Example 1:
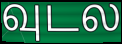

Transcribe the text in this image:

வுடல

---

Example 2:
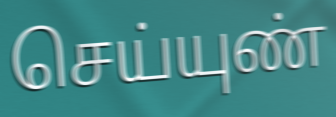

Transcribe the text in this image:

செய்யுண்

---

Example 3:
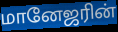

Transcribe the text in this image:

மானேஜரின்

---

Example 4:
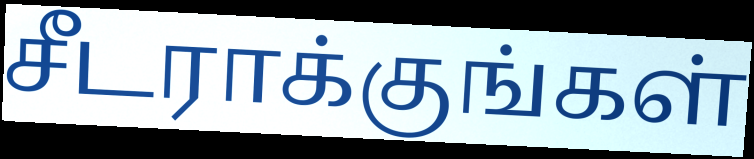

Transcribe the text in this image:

சீடராக்குங்கள்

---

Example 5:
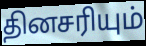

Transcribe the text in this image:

தினசரியும்